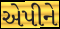
એપીને